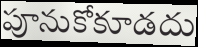
పూనుకోకూడదు